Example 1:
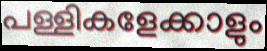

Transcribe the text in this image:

പള്ളികളേക്കാളും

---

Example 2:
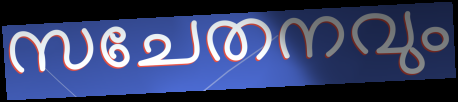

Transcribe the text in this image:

സചേതനവും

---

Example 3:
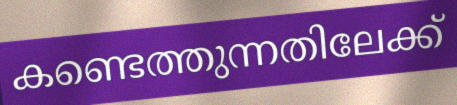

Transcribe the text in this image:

കണ്ടെത്തുന്നതിലേക്ക്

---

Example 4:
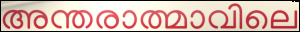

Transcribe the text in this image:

അന്തരാത്മാവിലെ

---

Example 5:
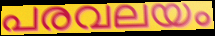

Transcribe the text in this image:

പരവലയം